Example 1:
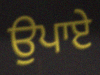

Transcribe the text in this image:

ਉਪਾਏ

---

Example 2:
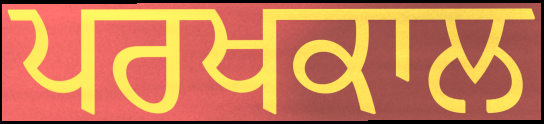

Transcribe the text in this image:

ਪਰਖਕਾਲ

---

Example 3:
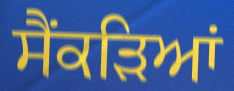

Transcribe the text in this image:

ਸੈਂਕੜਿਆਂ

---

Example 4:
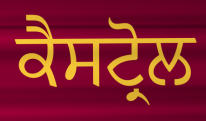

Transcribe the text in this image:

ਕੈਸਟ੍ਰੋਲ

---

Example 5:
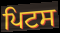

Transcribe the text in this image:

ਪਿਟਸ